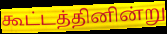
கூட்டத்தினின்று